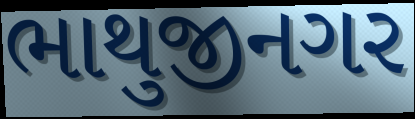
ભાથુજીનગર